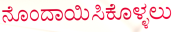
ನೊಂದಾಯಿಸಿಕೊಳ್ಳಲು